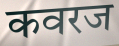
कवरज